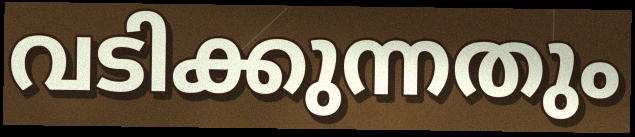
വടിക്കുന്നതും